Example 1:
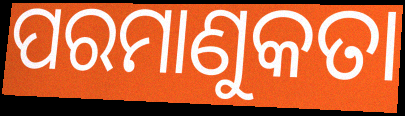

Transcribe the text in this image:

ପରମାଣୁକତା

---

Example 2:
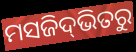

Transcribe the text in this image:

ମସଜିଦ୍‌ଭିତରୁ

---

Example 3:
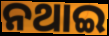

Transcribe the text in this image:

ନଥାଇ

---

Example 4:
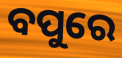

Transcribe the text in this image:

ବପୁରେ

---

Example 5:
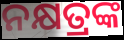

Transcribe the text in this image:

ନକ୍ଷତ୍ରଙ୍କ